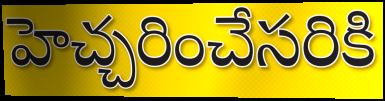
హెచ్చరించేసరికి